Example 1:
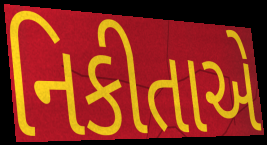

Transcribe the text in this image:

નિકીતાએ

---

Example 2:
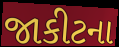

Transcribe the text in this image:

જાકીટના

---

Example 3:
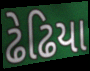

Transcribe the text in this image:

ઢેઢિયા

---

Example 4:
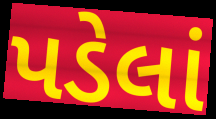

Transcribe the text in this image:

પડેલાં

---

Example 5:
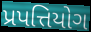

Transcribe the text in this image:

પ્રપત્તિયોગ